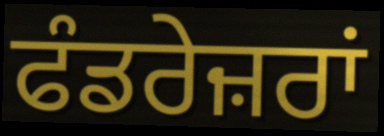
ਫੰਡਰੇਜ਼ਰਾਂ